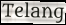
Telang